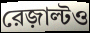
রেজ়াল্টও